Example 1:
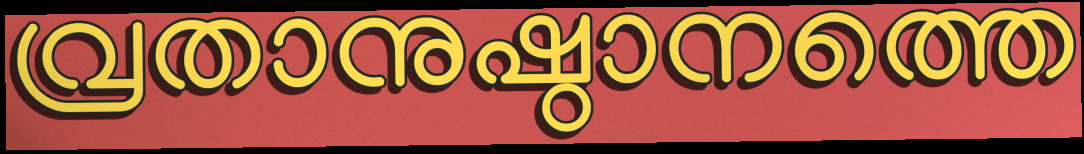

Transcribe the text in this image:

വ്രതാനുഷ്ഠാനത്തെ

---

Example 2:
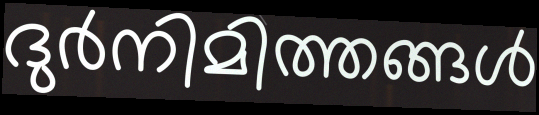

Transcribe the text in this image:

ദുർനിമിത്തങ്ങൾ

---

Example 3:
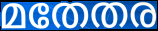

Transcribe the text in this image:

മതേതര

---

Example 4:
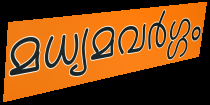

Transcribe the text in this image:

മധ്യമവർഗ്ഗം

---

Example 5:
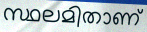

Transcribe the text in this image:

സ്ഥലമിതാണ്